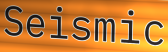
Seismic